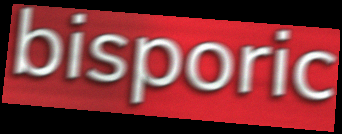
bisporic